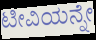
ಟೀವಿಯನ್ನೇ